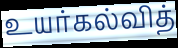
உயர்கல்வித்